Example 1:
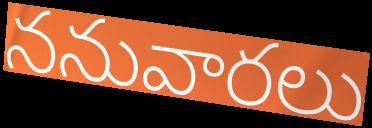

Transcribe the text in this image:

ననువారలు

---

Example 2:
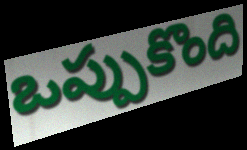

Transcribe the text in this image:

ఒప్పుకొంది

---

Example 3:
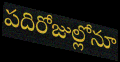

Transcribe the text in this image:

పదిరోజుల్లోనూ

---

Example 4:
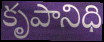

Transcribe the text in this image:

కృపానిధి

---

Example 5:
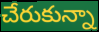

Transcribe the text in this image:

చేరుకున్నా